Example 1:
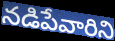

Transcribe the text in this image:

నడిపేవారిని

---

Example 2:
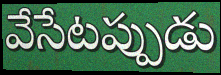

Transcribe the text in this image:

వేసేటప్పుడు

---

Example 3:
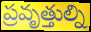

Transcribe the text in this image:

ప్రవృత్తుల్ని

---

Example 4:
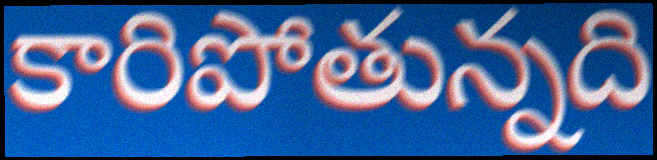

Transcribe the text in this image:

కారిపోతున్నది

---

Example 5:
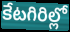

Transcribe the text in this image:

కేటగిరిల్లో